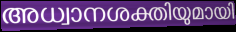
അധ്വാനശക്തിയുമായി